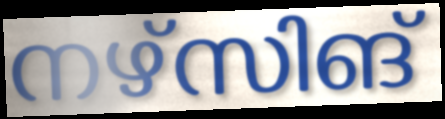
നഴ്സിങ്